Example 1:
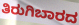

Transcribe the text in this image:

ತಿರುಗಿಬಾರದ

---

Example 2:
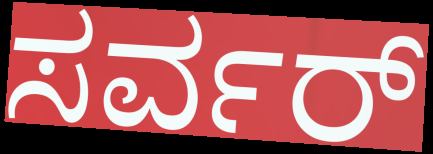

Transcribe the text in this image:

ಸರ್ವರ್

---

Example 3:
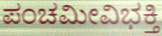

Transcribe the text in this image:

ಪಂಚಮೀವಿಭಕ್ತಿ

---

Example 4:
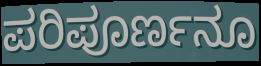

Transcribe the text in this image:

ಪರಿಪೂರ್ಣನೂ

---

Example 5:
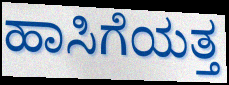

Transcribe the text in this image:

ಹಾಸಿಗೆಯತ್ತ